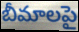
బీమాలపై